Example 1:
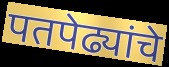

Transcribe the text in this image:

पतपेढ्यांचे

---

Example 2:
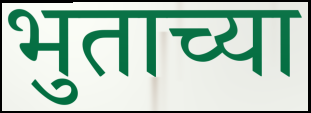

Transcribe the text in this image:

भुताच्या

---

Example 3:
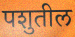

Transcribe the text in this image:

पशुतील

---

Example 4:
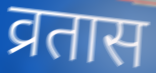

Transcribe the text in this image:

व्रतास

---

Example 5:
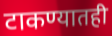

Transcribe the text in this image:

टाकण्यातही